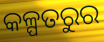
କଳ୍ପତରୁର